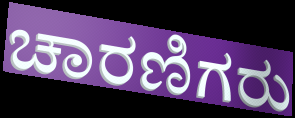
ಚಾರಣಿಗರು